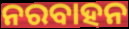
ନରବାହନ